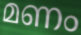
മണം